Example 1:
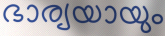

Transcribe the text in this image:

ഭാര്യയായും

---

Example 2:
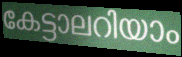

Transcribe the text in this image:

കേട്ടാലറിയാം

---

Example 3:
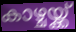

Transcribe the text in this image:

കാഴ്ചയ്ക്ക്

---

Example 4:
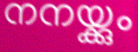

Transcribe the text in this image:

നനയ്ക്കും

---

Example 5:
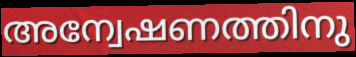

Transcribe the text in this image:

അന്വേഷണത്തിനു